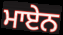
ਮਾਏਨ